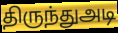
திருந்துஅடி